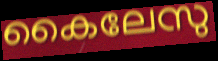
കൈലേസു